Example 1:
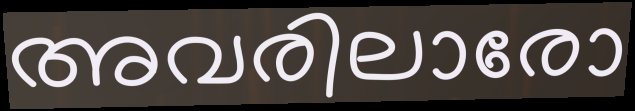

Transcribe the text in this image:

അവരിലാരോ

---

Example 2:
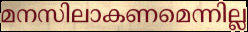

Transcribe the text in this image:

മനസിലാകണമെന്നില്ല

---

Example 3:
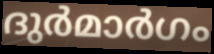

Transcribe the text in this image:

ദുർമാർഗം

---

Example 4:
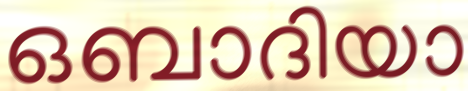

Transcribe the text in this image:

ഒബാദിയാ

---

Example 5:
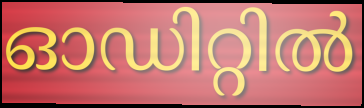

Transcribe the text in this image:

ഓഡിറ്റിൽ